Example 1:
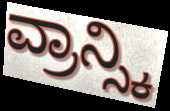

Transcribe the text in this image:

ವ್ರಾನ್ಸ್ಕಿ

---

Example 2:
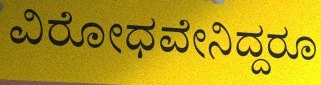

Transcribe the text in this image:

ವಿರೋಧವೇನಿದ್ದರೂ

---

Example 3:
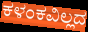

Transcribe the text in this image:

ಕಳಂಕವಿಲ್ಲದ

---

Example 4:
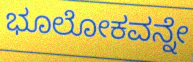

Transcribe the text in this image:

ಭೂಲೋಕವನ್ನೇ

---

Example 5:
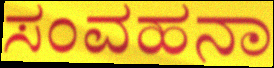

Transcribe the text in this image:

ಸಂವಹನಾ